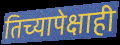
तिच्यापेक्षाही